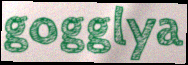
gogglya